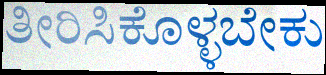
ತೀರಿಸಿಕೊಳ್ಳಬೇಕು